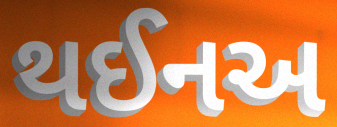
થઈનઅ